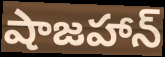
షాజహాన్